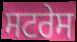
ਸਟਰੇਸ